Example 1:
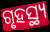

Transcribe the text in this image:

ଗୃହସ୍ଥ୍ୟ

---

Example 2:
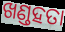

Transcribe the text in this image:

ଖଣ୍ଡହତା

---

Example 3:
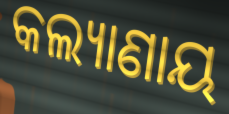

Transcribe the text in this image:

କଲ୍ୟାଣାୟ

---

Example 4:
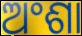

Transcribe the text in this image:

ଅଂଶା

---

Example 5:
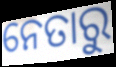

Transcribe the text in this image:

ନେତାରୁ